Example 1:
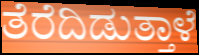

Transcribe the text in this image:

ತೆರೆದಿಡುತ್ತಾಳೆ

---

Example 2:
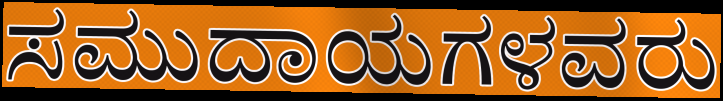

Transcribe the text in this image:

ಸಮುದಾಯಗಳವರು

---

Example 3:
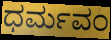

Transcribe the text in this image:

ಧರ್ಮವಂ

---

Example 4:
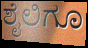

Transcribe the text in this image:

ಶೈಲಿಗೂ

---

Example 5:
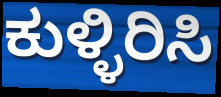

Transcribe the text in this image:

ಕುಳ್ಳಿರಿಸಿ